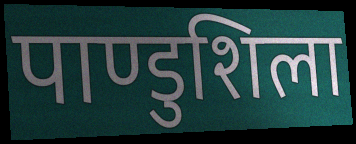
पाण्डुशिला